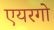
एयरगो